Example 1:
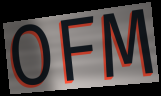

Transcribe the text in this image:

OFM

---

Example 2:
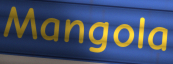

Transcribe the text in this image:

Mangola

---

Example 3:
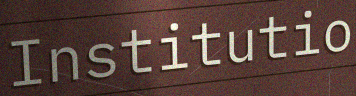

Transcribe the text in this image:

Institutio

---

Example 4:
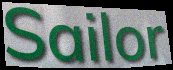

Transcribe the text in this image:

Sailor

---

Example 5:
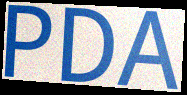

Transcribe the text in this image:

PDA